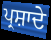
ਪ੍ਰਸ਼ਾਦੇ